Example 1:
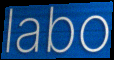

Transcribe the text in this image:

labo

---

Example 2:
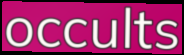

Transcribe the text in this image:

occults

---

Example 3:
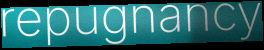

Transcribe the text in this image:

repugnancy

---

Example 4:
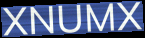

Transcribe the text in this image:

XNUMX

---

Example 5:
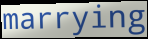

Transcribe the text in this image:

marrying